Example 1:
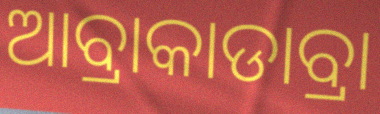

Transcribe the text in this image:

ଆବ୍ରାକାଡାବ୍ରା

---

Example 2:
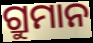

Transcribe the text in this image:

ଗ୍ରୁମାନ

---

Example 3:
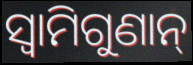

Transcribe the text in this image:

ସ୍ୱାମିଗୁଣାନ୍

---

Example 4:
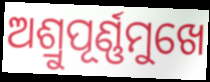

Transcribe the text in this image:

ଅଶ୍ରୁପୂର୍ଣ୍ଣମୁଖେ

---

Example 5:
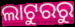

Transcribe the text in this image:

ଲାଟୁରରୁ